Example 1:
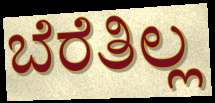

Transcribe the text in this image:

ಬೆರೆತಿಲ್ಲ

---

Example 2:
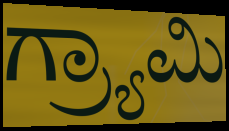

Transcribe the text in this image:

ಗ್ರ್ಯಾಮಿ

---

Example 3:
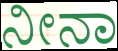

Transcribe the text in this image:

ನೀನಾ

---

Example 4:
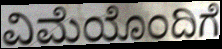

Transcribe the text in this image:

ವಿಮೆಯೊಂದಿಗೆ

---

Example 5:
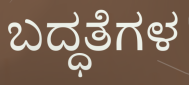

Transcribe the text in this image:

ಬದ್ಧತೆಗಳ